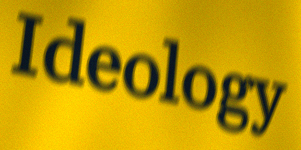
Ideology